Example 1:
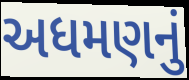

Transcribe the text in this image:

અધમણનું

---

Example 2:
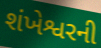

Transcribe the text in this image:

શંખેશ્વરની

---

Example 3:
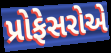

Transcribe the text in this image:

પ્રોફેસરોએ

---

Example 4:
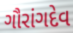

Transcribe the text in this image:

ગૌરાંગદેવ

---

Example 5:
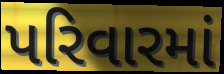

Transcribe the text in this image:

પરિવારમાં